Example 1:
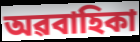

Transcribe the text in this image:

অৱবাহিকা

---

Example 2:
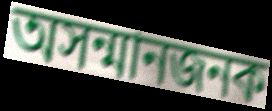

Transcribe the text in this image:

অসন্মানজনক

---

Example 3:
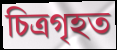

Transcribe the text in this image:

চিত্ৰগৃহত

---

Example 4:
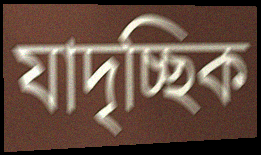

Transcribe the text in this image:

যাদৃচ্ছিক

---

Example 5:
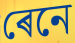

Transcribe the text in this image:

ৰেনে